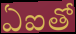
ఏఐతో